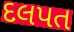
દલપત